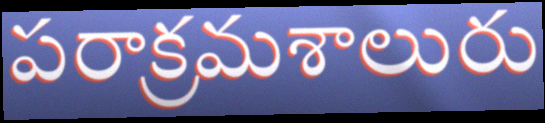
పరాక్రమశాలురు